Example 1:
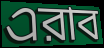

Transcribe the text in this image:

এরাব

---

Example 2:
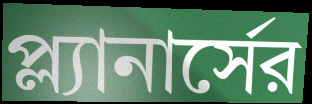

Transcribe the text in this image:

প্ল্যানার্সের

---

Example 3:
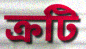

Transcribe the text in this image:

ক্রটি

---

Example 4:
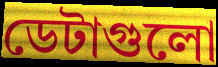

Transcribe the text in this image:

ডেটাগুলো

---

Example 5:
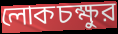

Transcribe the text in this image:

লোকচক্ষুর